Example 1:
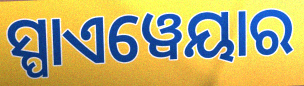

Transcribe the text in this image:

ସ୍ପାଏୱେୟାର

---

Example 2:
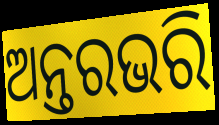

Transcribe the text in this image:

ଅନ୍ତରଭରି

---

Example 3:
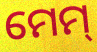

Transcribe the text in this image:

ମେମ୍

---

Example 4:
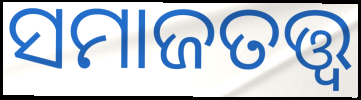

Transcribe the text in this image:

ସମାଜତତ୍ତ୍ବ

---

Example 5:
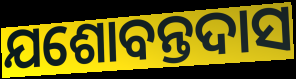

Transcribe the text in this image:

ଯଶୋବନ୍ତଦାସ